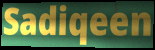
Sadiqeen